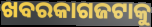
ଖବରକାଗଜଟାକୁ